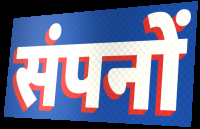
संपनों